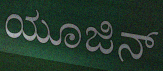
ಯೂಜಿನ್